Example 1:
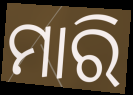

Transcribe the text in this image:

ମାରି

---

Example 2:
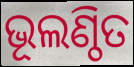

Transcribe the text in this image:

ଭୂଲଣ୍ଠିତ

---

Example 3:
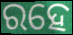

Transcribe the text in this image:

ରହେ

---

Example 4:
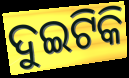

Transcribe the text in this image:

ଦୁଇଟିକି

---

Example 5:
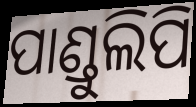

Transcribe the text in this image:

ପାଣ୍ଡୁଲିପି